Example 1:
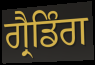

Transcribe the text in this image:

ਗ੍ਰੈਡਿੰਗ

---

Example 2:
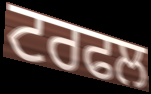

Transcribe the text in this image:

ਟਰਫਲ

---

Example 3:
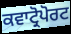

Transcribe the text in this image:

ਕਵਾਟ੍ਰੋਪੋਰਟ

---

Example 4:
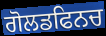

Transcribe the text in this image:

ਗੋਲਡਫਿਨਚ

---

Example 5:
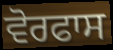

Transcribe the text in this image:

ਵੋਰਫਾਸ